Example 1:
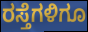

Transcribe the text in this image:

ರಸ್ತೆಗಳಿಗೂ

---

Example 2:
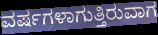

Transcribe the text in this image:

ವರ್ಷಗಳಾಗುತ್ತಿರುವಾಗ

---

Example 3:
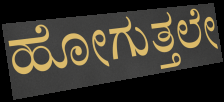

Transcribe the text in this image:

ಹೋಗುತ್ತಲೇ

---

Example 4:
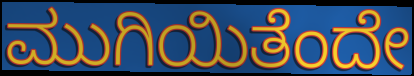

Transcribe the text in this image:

ಮುಗಿಯಿತೆಂದೇ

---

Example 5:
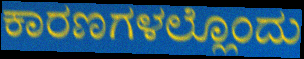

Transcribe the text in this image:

ಕಾರಣಗಳಲ್ಲೊಂದು